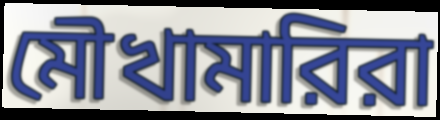
মৌখামারিরা